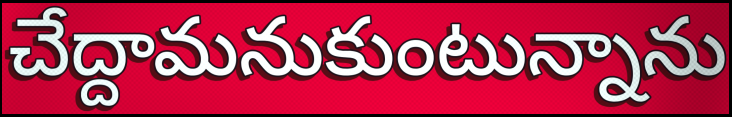
చేద్దామనుకుంటున్నాను